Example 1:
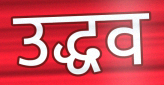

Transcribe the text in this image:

उद्धव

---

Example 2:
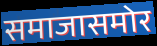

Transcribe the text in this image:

समाजासमोर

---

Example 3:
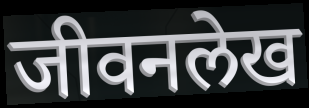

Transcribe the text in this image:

जीवनलेख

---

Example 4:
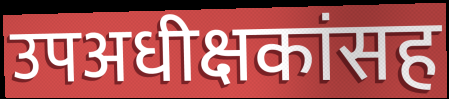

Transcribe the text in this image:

उपअधीक्षकांसह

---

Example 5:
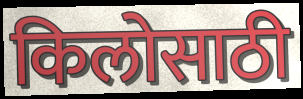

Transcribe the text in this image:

किलोसाठी